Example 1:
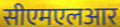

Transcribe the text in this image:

सीएमएलआर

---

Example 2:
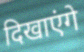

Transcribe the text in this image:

दिखाएंगे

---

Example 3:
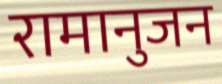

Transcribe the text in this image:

रामानुजन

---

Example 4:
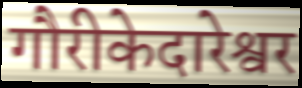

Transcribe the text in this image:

गौरीकेदारेश्वर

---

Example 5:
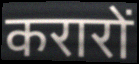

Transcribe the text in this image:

करारों